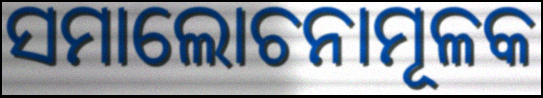
ସମାଲୋଚନାମୂଳକ